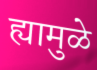
ह्यामुळे